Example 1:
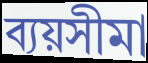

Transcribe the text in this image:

ব্যয়সীমা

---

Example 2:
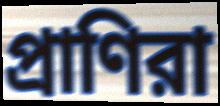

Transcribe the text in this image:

প্রাণিরা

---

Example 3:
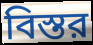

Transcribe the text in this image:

বিস্তর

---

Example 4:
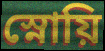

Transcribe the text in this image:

স্নোয়ি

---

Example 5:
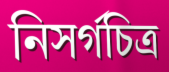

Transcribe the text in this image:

নিসর্গচিত্র